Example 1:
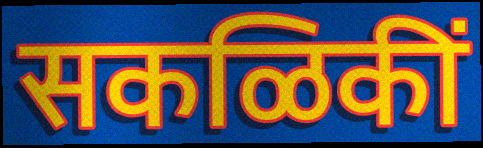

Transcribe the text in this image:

सकळिकीं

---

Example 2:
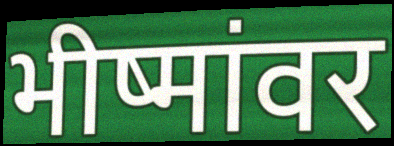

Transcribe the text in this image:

भीष्मांवर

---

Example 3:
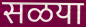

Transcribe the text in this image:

सळया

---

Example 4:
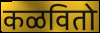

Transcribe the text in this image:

कळवितो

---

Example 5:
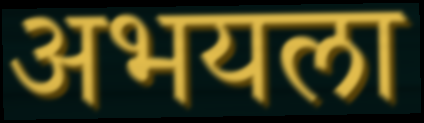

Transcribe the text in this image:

अभयला